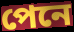
পেনে